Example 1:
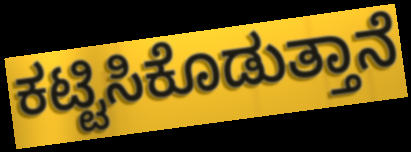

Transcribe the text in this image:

ಕಟ್ಟಿಸಿಕೊಡುತ್ತಾನೆ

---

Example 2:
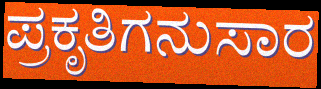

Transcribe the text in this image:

ಪ್ರಕೃತಿಗನುಸಾರ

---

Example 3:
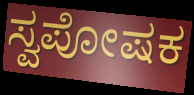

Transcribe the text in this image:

ಸ್ವಪೋಷಕ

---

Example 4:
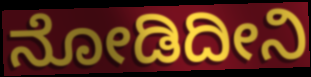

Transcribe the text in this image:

ನೋಡಿದೀನಿ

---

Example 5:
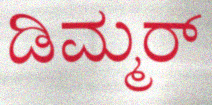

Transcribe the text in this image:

ಡಿಮ್ಮರ್